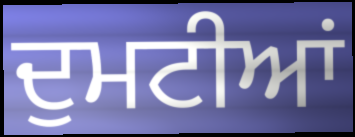
ਦੁਮਟੀਆਂ